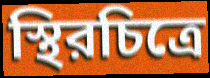
স্থিরচিত্রে